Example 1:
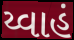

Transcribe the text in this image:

ય્વાહં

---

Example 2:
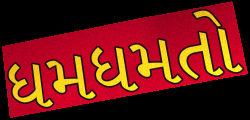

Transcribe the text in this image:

ધમધમતો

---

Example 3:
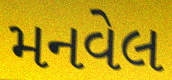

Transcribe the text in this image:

મનવેલ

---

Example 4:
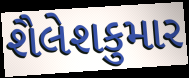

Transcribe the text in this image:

શૈલેશકુમાર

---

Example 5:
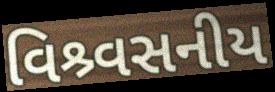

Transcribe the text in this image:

વિશ્ર્વસનીય